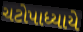
ચટોપાધ્યાયે